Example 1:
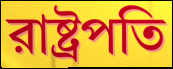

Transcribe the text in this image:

রাষ্ট্রপতি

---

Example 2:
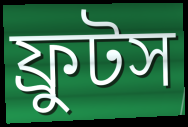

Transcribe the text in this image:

ফ্রুটস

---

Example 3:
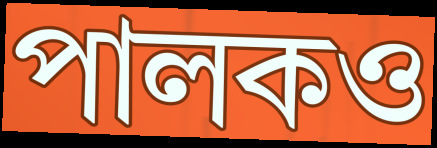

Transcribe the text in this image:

পালকও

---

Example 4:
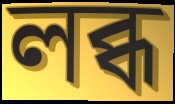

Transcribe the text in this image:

লব্ধ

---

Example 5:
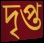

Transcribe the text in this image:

দৃপ্ত